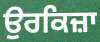
ਉਰਕਿਜ਼ਾ